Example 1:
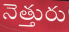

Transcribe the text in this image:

నెత్తురు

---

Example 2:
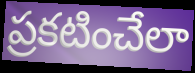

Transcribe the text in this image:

ప్రకటించేలా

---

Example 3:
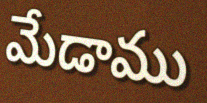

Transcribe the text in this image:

మేడాము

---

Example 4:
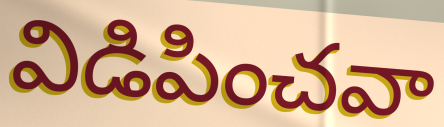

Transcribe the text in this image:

విడిపించవా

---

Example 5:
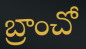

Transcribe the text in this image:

బ్రాంచో